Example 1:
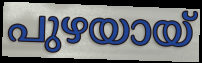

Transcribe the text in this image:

പുഴയായ്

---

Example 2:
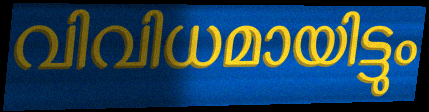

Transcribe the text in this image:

വിവിധമായിട്ടും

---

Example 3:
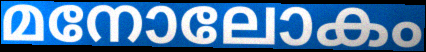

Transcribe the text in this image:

മനോലോകം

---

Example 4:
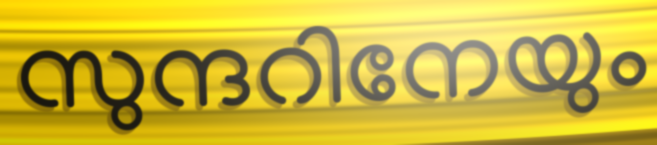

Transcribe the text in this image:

സുന്ദറിനേയും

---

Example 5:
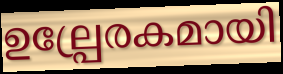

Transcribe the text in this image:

ഉല്പ്രേരകമായി